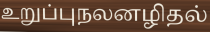
உறுப்புநலனழிதல்